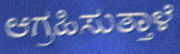
ಆಗ್ರಹಿಸುತ್ತಾಳೆ